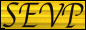
SEVP